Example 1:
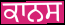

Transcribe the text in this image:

ਕਾਨਸ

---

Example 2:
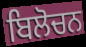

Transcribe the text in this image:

ਬਿਲੋਚਨ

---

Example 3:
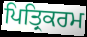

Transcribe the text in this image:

ਪਿਤ੍ਰਿਕਰਮ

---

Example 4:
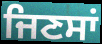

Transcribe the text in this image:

ਜਿਣਸਾਂ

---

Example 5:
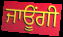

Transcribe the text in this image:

ਜਾਊਂਗੀ